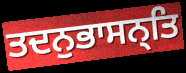
ਤਦਨੁਭਾਸਨ੍ਤਿ